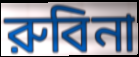
রুবিনা